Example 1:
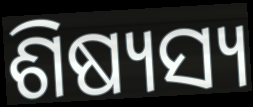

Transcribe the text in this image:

ଶିଷ୍ୟସ୍ୟ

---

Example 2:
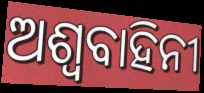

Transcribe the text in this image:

ଅଶ୍ୱବାହିନୀ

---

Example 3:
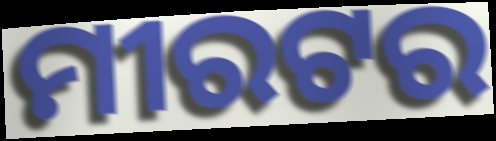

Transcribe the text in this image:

ମୀରଟର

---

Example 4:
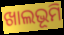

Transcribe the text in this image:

ଖାଲଭୂମି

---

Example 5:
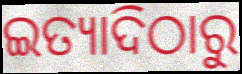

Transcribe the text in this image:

ଇତ୍ୟାଦିଠାରୁ